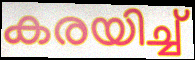
കരയിച്ച്